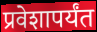
प्रवेशापर्यंत